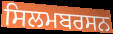
ਸਿਲਮਬਰਸਨ